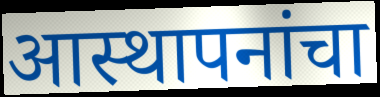
आस्थापनांचा